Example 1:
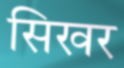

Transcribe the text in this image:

सिखर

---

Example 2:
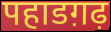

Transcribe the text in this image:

पहाडग़ढ़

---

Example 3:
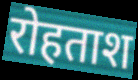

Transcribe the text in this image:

रोहताश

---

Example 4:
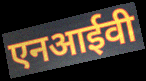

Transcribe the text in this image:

एनआईवी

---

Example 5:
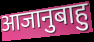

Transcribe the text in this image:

आजानुबाहु